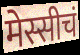
मेस्सीचं